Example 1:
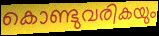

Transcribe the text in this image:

കൊണ്ടുവരികയും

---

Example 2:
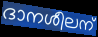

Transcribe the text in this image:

ദാനശീലന്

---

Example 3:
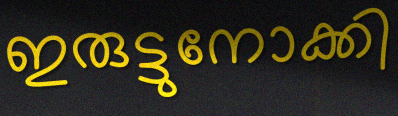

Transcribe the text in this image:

ഇരുട്ടുനോക്കി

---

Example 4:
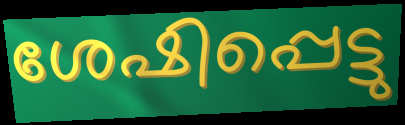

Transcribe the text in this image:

ശേഷിപ്പെട്ടു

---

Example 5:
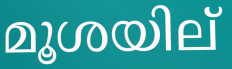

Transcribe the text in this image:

മൂശയില്